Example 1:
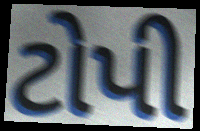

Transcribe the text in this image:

ટોપી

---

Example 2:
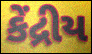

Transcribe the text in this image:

કેંદ્રીય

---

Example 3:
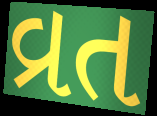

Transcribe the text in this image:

વ્રત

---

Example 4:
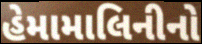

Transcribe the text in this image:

હેમામાલિનીનો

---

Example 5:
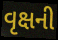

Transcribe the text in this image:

વૃક્ષની